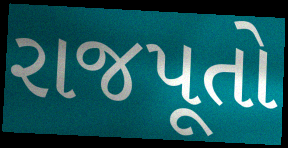
રાજપૂતો